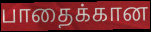
பாதைக்கான